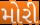
મોરી